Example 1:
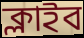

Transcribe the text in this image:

ক্লাইব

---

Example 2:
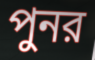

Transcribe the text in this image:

পুনর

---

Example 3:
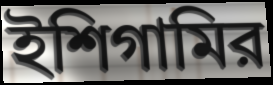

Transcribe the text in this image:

ইশিগামির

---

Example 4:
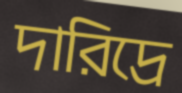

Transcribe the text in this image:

দারিদ্রে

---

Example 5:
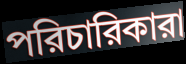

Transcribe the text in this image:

পরিচারিকারা